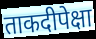
ताकदीपेक्षा